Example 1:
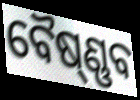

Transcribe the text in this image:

ବୈଷ୍ଣ୍ଣବ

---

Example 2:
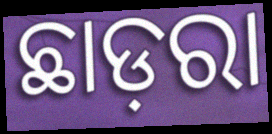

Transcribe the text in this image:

ଛାଡ଼ରା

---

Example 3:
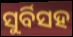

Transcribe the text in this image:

ସୁର୍ବିସହ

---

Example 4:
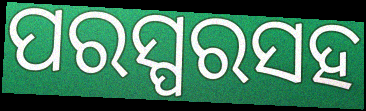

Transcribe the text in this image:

ପରସ୍ପରସହ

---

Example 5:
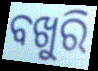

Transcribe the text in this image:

ବଖୁରି